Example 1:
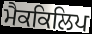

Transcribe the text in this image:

ਮੈਕਕਿਲਿਪ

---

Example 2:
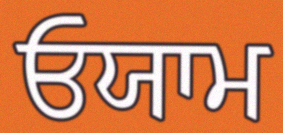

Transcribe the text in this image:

ਓਯਾਮ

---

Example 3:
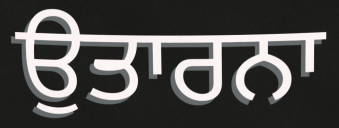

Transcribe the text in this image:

ਉਤਾਰਨਾ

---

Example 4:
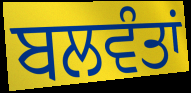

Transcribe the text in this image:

ਬਲਵੰਤਾਂ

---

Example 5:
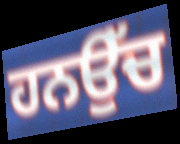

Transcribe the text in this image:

ਹਨਉੱਚ